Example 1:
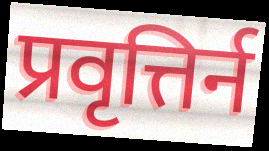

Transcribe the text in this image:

प्रवृत्तिर्न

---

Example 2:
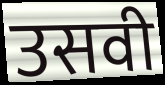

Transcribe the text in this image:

उसवी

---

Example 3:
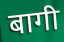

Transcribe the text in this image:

बागी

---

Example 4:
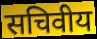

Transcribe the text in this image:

सचिवीय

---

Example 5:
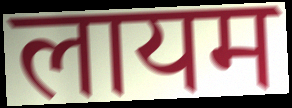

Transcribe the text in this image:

लायम